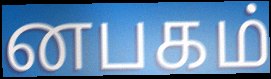
னபகம்